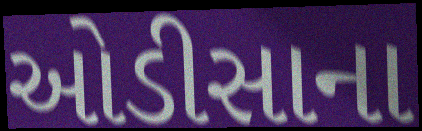
ઓડીસાના